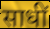
साधीं